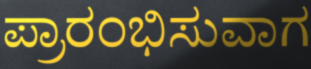
ಪ್ರಾರಂಭಿಸುವಾಗ